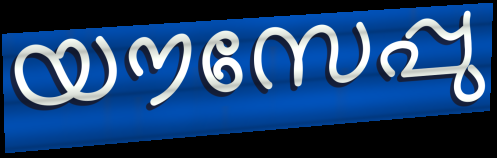
യൗസേപ്പു